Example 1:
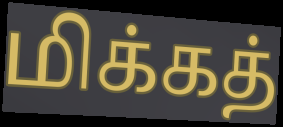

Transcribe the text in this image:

மிக்கத்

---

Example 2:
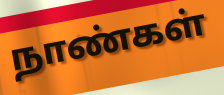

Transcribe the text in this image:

நாண்கள்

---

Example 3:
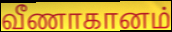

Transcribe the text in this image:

வீணாகானம்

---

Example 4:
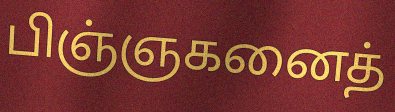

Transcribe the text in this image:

பிஞ்ஞகனைத்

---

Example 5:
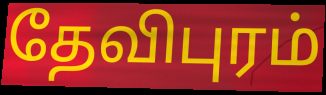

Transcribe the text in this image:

தேவிபுரம்